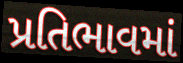
પ્રતિભાવમાં